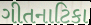
ગીતનાટિકા